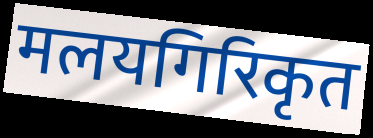
मलयगिरिकृत